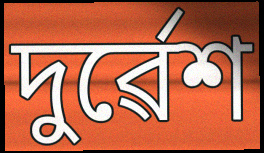
দুৰ্ৱেশ